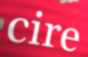
cire